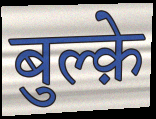
बुल्क़े